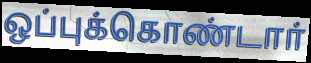
ஒப்புக்கொண்டார்